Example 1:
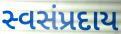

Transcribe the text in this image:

સ્વસંપ્રદાય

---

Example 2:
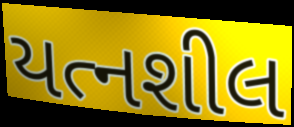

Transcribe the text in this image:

યત્નશીલ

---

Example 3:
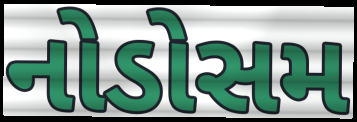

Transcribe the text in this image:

નોડોસમ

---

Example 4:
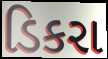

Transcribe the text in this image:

ડિકરા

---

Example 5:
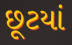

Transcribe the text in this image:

છૂટયાં